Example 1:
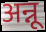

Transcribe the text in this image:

अन्नू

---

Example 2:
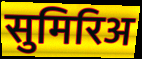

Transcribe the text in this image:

सुमिरिअ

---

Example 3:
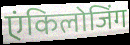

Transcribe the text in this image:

एंकिलोजिंग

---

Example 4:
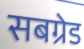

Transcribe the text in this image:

सबग्रेड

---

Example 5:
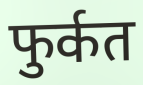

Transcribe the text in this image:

फुर्कत